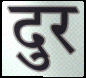
दुर